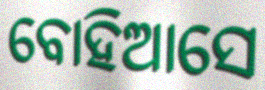
ବୋହିଆସେ